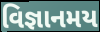
વિજ્ઞાનમય